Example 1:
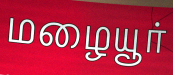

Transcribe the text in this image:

மழையூர்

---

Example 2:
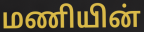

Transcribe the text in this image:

மணியின்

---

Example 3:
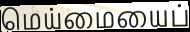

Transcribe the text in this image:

மெய்மையைப்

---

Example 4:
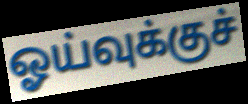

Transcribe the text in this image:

ஓய்வுக்குச்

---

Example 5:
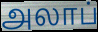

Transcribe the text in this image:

அலாப்